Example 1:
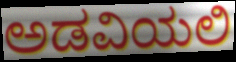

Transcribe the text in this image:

ಅಡವಿಯಲಿ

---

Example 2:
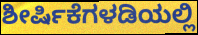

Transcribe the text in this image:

ಶೀರ್ಷಿಕೆಗಳಡಿಯಲ್ಲಿ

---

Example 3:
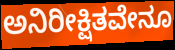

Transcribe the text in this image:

ಅನಿರೀಕ್ಷಿತವೇನೂ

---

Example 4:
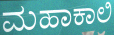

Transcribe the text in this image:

ಮಹಾಕಾಲಿ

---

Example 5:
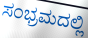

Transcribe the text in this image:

ಸಂಭ್ರಮದಲ್ಲಿ